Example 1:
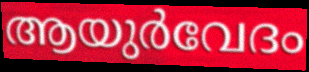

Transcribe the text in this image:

ആയുർവേദം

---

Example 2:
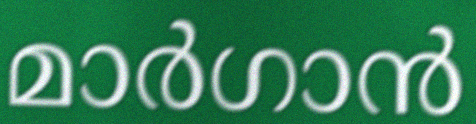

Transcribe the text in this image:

മാർഗാൻ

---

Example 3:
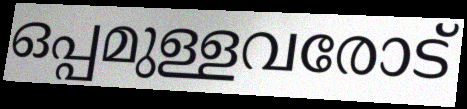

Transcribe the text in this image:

ഒപ്പമുള്ളവരോട്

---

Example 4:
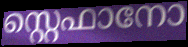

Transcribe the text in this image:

സ്റ്റെഫാനോ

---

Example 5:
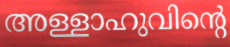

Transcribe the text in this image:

അള്ളാഹുവിന്റെ